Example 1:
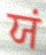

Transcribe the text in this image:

ਯਂ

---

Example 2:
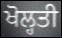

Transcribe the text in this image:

ਖੋਲ੍ਹਤੀ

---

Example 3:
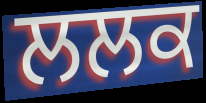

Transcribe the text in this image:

ਲਲਕ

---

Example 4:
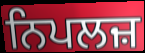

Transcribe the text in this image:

ਨਿਪਲਜ਼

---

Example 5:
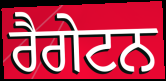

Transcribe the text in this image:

ਰੈਗੇਟਨ